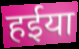
हईया